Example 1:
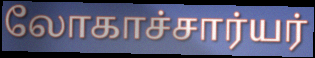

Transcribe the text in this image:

லோகாச்சார்யர்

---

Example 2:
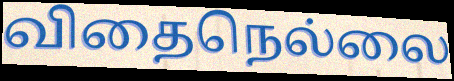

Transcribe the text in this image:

விதைநெல்லை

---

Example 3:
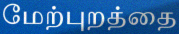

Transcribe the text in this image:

மேற்புறத்தை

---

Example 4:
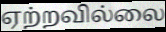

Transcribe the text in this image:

ஏற்றவில்லை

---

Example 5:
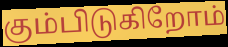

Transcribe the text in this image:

கும்பிடுகிறோம்